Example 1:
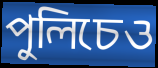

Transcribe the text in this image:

পুলিচেও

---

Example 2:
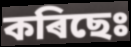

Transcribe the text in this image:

কৰিছেঃ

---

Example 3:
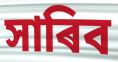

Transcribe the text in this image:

সাৰিব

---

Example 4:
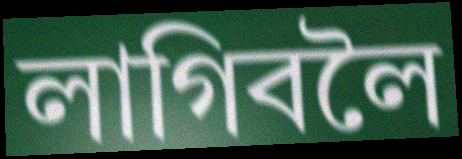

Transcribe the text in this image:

লাগিবলৈ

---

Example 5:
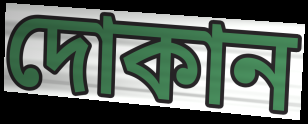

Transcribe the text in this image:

দোকান